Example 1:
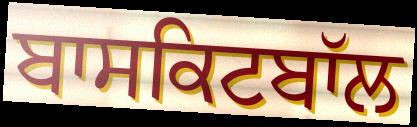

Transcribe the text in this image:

ਬਾਸਕਿਟਬਾੱਲ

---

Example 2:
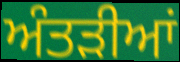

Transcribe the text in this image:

ਅੰਤੜੀਆਂ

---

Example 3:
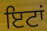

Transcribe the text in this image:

ਇਟਾਂ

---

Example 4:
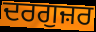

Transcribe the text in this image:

ਦਰਗੁਜ਼ਰ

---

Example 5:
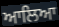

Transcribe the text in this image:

ਆਲਿਆ